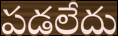
పడలేదు